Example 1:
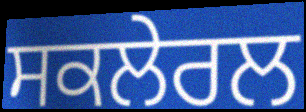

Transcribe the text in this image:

ਸਕਲੇਰਲ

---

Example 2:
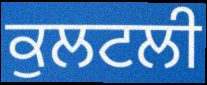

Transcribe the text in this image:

ਕੁਲਟਲੀ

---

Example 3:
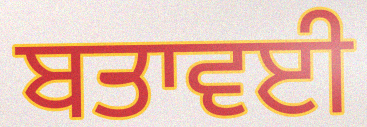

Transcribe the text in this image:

ਬਤਾਵਈ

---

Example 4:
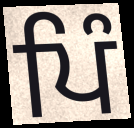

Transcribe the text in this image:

ਪਿੰ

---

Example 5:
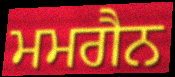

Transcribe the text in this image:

ਮਮਗੈਨ